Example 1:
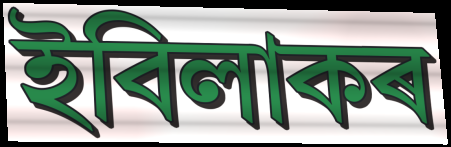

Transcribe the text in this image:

ইবিলাকৰ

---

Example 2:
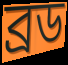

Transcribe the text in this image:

ব্ৰড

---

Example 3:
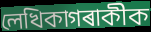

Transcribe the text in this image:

লেখিকাগৰাকীক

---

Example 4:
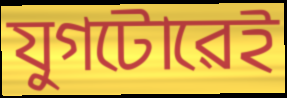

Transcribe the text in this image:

যুগটোৱেই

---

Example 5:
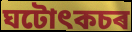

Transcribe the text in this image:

ঘটোৎকচৰ